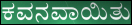
ಕವನವಾಯಿತು